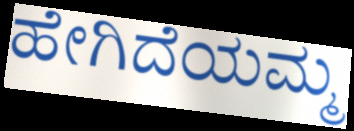
ಹೇಗಿದೆಯಮ್ಮ